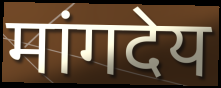
मांगदेय